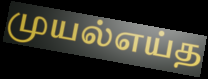
முயல்எய்த